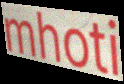
mhoti